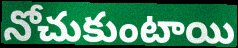
నోచుకుంటాయి